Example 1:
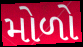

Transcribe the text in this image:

મોળો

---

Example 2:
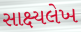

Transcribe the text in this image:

સાક્ષ્યલેખ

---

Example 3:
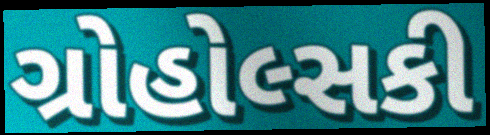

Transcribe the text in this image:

ગ્રોહોલ્સકી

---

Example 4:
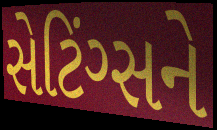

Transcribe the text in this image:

સેટિંગ્સને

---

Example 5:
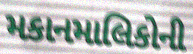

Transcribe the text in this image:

મકાનમાલિકોની